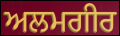
ਅਲਮਗੀਰ